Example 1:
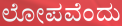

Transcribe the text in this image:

ಲೋಪವೆಂದು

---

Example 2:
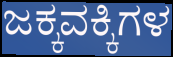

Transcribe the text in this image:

ಜಕ್ಕವಕ್ಕಿಗಳ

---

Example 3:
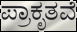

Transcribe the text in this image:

ಪ್ರಾಕೃತವೆ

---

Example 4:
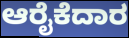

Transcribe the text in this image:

ಆರೈಕೆದಾರ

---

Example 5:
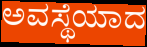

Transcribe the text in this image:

ಅವಸ್ಥೆಯಾದ